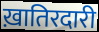
ख़ातिरदारी